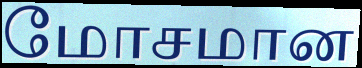
மோசமான